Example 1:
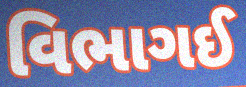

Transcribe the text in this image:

વિભાગઈ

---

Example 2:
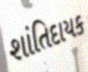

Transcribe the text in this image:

શાંતિદાયક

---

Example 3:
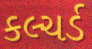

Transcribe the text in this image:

કલ્ચર્ડ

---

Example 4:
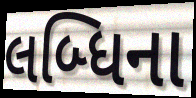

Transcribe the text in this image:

લબ્ધિના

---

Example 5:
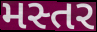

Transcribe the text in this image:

મસ્તર